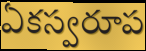
ఏకస్వరూప